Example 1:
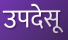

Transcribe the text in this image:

उपदेसू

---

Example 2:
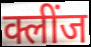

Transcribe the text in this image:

क्लींज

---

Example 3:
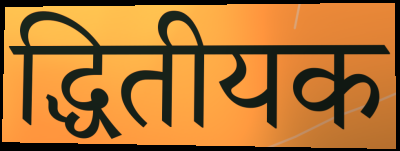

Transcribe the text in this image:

द्धितीयक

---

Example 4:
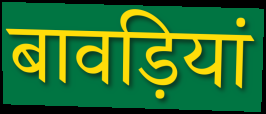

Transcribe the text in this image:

बावड़ियां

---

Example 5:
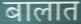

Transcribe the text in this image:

बालात